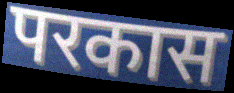
परकास